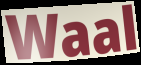
Waal